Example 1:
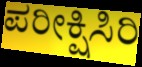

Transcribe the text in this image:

ಪರೀಕ್ಷಿಸಿರಿ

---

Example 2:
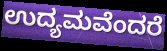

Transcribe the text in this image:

ಉದ್ಯಮವೆಂದರೆ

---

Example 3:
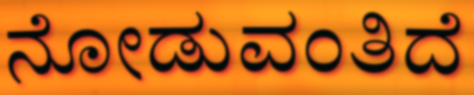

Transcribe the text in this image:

ನೋಡುವಂತಿದೆ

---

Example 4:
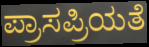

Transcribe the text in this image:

ಪ್ರಾಸಪ್ರಿಯತೆ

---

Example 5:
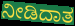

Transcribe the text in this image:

ನೀಡಿದಾತ